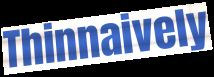
Thinnaively